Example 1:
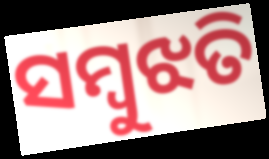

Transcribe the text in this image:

ସମ୍ବୁଝତି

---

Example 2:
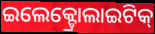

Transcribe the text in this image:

ଇଲେକ୍ଟ୍ରୋଲାଇଟିକ୍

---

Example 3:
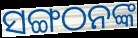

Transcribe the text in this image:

ସଙ୍ଗଠନଙ୍କ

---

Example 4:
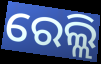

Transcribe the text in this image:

ରେଲ୍ଲି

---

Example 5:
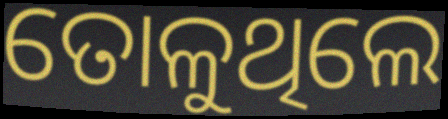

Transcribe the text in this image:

ତୋଳୁଥିଲେ